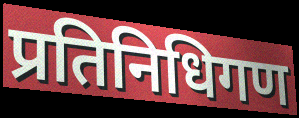
प्रतिनिधिगण